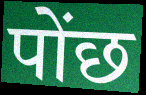
पोंछ